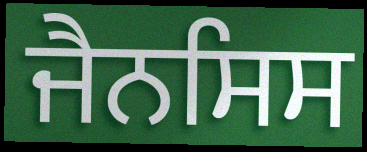
ਜੈਨਸਿਸ